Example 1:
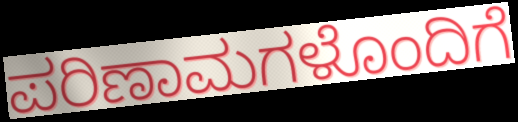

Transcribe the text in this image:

ಪರಿಣಾಮಗಳೊಂದಿಗೆ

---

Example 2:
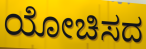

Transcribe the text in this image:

ಯೋಚಿಸದ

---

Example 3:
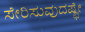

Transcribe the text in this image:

ಸೇರಿಸುವುದಷ್ಟೇ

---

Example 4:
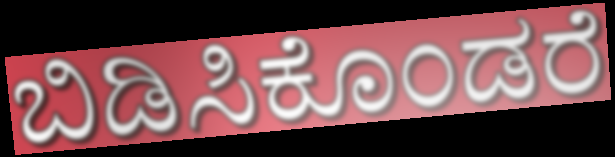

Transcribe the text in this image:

ಬಿಡಿಸಿಕೊಂಡರೆ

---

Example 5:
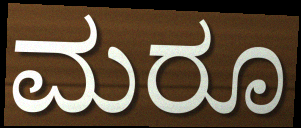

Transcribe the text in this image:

ಮರೂ